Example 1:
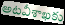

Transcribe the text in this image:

అటవీశాఖకు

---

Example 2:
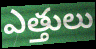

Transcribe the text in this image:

ఎత్తులు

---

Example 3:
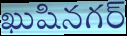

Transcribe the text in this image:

ఖుషినగర్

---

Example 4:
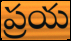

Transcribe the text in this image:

ప్రయ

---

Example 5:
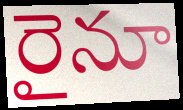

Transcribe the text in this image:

రైనూ